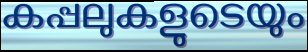
കപ്പലുകളുടെയും